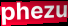
phezu